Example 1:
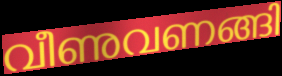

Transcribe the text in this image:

വീണുവണങ്ങി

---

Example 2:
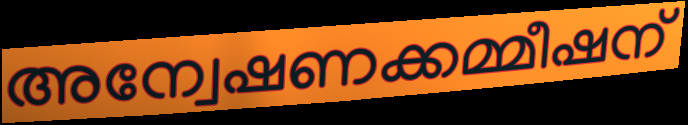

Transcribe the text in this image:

അന്വേഷണക്കമ്മീഷന്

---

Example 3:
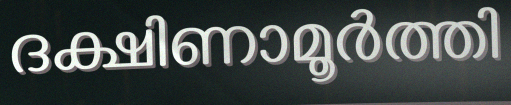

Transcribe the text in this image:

ദക്ഷിണാമൂർത്തി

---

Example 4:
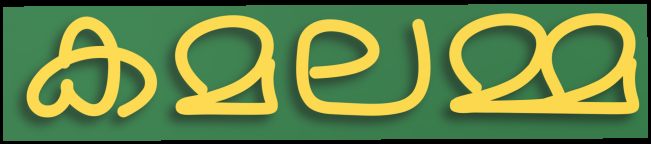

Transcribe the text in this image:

കമലമ്മ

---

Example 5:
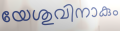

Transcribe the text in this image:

യേശുവിനാകും